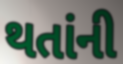
થતાંની